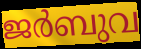
ജർബുവ